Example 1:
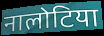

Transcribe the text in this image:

नालोटिया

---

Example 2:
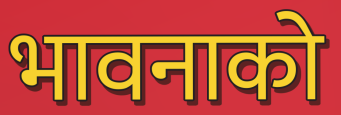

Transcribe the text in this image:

भावनाको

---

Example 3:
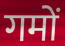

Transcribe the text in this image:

गमों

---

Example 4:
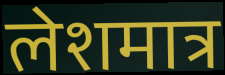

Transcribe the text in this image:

लेशमात्र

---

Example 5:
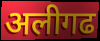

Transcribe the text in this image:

अलीगढ